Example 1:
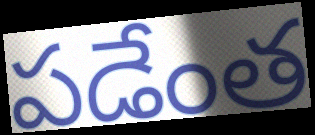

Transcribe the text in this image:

పడేంత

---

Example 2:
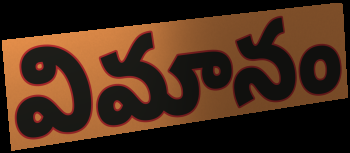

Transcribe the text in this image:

విమానం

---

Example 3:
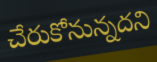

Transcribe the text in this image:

చేరుకోనున్నదని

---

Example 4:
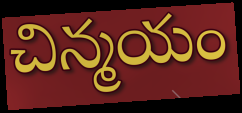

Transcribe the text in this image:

చిన్మయం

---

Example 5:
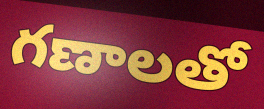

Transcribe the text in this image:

గణాలతో